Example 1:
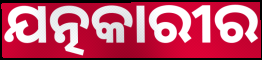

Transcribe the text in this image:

ଯତ୍ନକାରୀର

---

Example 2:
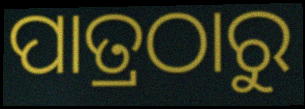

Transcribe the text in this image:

ପାତ୍ରଠାରୁ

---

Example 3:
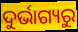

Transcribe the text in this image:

ଦୁର୍ଭାଗ୍ୟରୁ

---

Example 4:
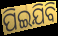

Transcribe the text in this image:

ପିଇଯିବି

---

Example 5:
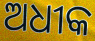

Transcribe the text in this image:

ଅଧୀକ